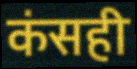
कंसही